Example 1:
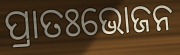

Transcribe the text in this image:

ପ୍ରାତଃଭୋଜନ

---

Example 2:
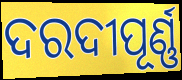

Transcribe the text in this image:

ଦରଦୀପୂର୍ଣ୍ଣ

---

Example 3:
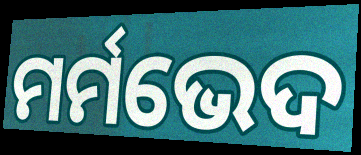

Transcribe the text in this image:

ମର୍ମଭେଦ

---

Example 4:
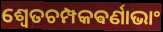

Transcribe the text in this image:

ଶ୍ଵେତଚମ୍ପକଵର୍ଣାଭାଂ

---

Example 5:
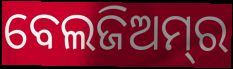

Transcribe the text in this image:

ବେଲଜିଅମ୍‌ର